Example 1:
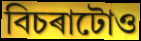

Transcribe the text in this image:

বিচৰাটোও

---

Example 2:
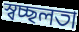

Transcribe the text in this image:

স্বচ্ছলতা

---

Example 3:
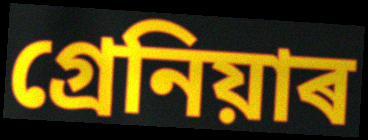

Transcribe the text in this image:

গ্ৰেনিয়াৰ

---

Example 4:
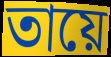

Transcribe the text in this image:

তায়ে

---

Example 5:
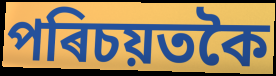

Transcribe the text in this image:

পৰিচয়তকৈ